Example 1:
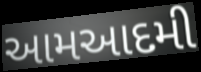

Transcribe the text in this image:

આમઆદમી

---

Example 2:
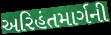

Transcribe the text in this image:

અરિહંતમાર્ગની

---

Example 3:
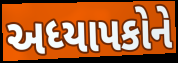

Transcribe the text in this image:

અધ્યાપકોને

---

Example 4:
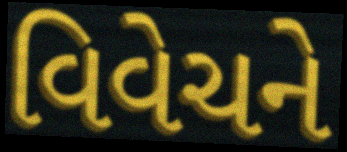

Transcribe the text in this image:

વિવેચને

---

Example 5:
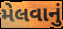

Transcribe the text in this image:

મેલવાનું